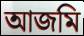
আজমি